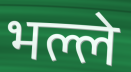
भल्ले